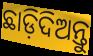
ଛାଡ଼ିଦିଅନ୍ତୁ